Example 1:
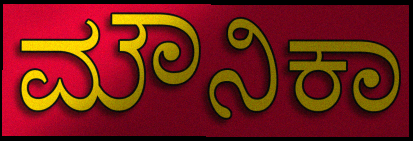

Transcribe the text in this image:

ಮೌನಿಕಾ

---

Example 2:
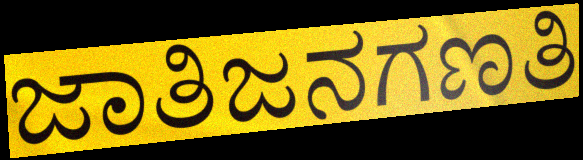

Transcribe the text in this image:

ಜಾತಿಜನಗಣತಿ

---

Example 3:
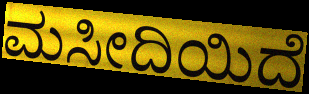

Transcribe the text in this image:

ಮಸೀದಿಯಿದೆ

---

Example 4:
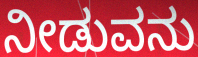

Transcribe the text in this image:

ನೀಡುವನು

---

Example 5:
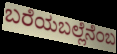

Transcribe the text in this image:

ಬರೆಯಬಲ್ಲೆನೆಂಬ